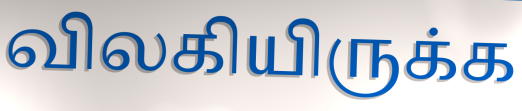
விலகியிருக்க